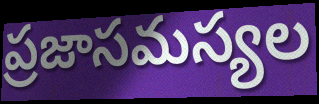
ప్రజాసమస్యల